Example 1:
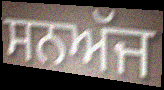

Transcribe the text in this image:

ਸਨਅੱਜ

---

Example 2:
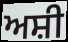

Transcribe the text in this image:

ਅਸ਼ੀ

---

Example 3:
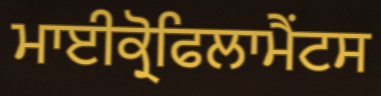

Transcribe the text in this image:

ਮਾਈਕ੍ਰੋਫਿਲਾਮੈਂਟਸ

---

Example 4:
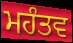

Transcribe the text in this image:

ਮਹੰਤਵ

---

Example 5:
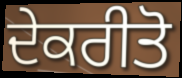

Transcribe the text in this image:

ਦੇਕਰੀਤੋ